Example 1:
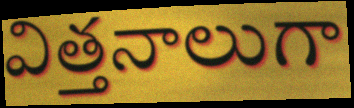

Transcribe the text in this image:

విత్తనాలుగా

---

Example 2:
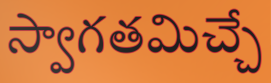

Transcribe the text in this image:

స్వాగతమిచ్చే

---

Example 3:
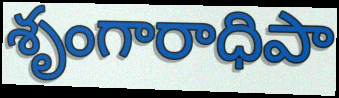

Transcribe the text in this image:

శృంగారాధిపా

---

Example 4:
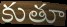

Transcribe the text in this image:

కుతూ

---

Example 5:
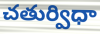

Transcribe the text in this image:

చతుర్విధా